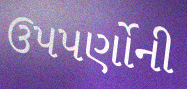
ઉપપર્ણોની